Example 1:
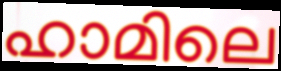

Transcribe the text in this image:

ഹാമിലെ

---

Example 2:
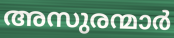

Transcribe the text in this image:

അസുരന്മാർ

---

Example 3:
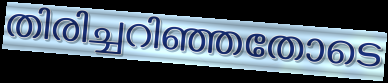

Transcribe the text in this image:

തിരിച്ചറിഞ്ഞതോടെ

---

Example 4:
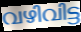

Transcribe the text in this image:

വഴിവിട്ട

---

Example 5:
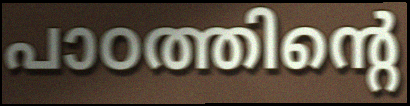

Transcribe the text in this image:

പാഠത്തിന്റെ